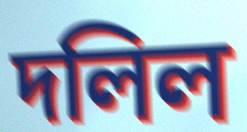
দলিল